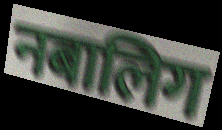
नबालिग